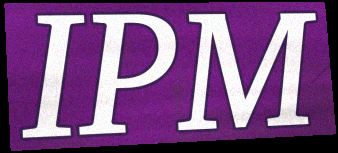
IPM